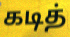
கடித்